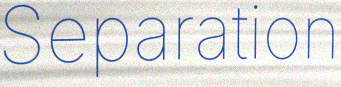
Separation